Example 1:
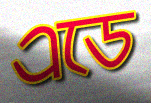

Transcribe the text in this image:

এডে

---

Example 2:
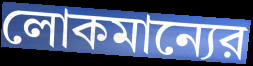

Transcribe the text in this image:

লোকমান্যের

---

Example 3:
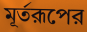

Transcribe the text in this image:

মূর্তরূপের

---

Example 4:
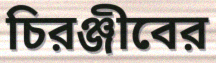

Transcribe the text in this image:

চিরঞ্জীবের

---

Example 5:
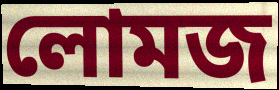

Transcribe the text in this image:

লোমজ